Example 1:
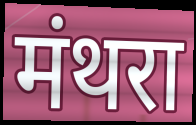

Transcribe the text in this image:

मंथरा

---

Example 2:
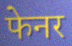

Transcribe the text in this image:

फेनर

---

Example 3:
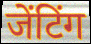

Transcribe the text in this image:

जेंटिंग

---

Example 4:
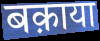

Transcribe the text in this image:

बक़ाया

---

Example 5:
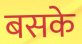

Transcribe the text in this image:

बसके